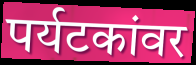
पर्यटकांवर